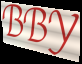
BBY